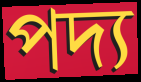
পদ্য